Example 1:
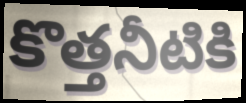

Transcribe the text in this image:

కొత్తనీటికి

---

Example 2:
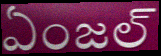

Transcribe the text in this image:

ఏంజల్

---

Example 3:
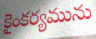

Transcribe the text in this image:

కైంకర్యమును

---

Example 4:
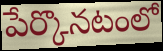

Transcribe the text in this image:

పేర్కొనటంలో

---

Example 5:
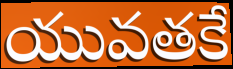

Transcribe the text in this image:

యువతకే